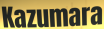
Kazumara